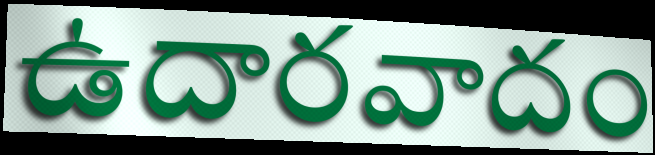
ఉదారవాదం